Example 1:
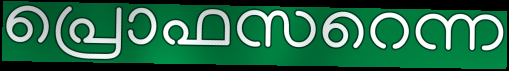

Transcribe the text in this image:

പ്രൊഫസറെന്ന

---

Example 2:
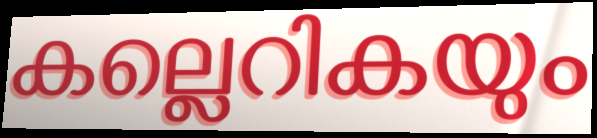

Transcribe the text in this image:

കല്ലെറികയും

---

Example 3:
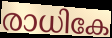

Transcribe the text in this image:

രാധികേ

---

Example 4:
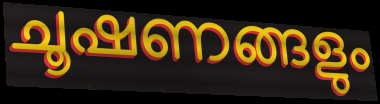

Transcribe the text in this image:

ചൂഷണങ്ങളും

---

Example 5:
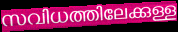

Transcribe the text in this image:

സവിധത്തിലേക്കുള്ള